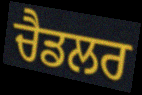
ਚੈਡਲਰ